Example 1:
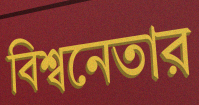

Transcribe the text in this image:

বিশ্বনেতার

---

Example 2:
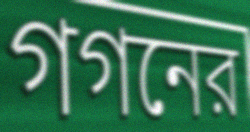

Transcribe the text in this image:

গগনের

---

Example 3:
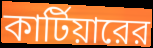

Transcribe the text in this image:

কার্টিয়ারের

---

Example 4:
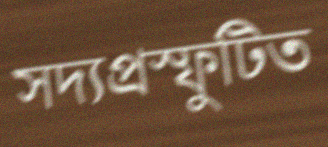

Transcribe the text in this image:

সদ্যপ্রস্ফুটিত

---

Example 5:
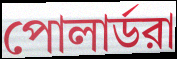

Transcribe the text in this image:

পোলার্ডরা